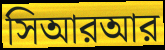
সিআরআর